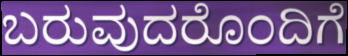
ಬರುವುದರೊಂದಿಗೆ